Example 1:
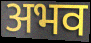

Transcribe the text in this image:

अभव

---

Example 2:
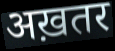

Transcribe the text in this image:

अख़तर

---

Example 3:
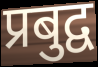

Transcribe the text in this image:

प्रबुद्व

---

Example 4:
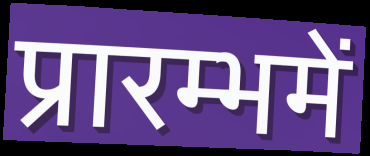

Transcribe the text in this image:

प्रारम्भमें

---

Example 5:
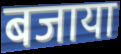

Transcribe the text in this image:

बजाया